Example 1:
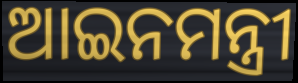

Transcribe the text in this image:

ଆଇନମନ୍ତ୍ରୀ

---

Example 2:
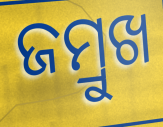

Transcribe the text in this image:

ଜମ୍ରୁଖ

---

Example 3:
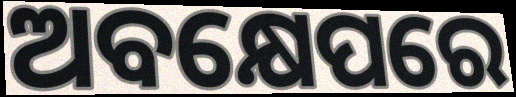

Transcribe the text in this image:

ଅବକ୍ଷେପରେ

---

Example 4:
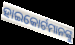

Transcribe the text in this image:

ହାଇକୋର୍ଟମାନଙ୍କୁ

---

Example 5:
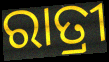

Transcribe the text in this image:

ରାତ୍ରୀ